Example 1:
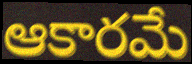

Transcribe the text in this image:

ఆకారమే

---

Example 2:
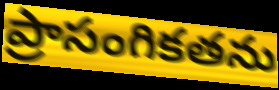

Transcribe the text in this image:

ప్రాసంగికతను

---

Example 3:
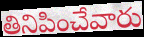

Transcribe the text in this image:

తినిపించేవారు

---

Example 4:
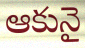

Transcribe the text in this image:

ఆకునై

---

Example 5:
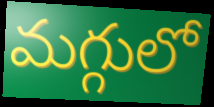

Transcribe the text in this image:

మగ్గులో